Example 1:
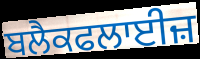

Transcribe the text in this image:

ਬਲੈਕਫਲਾਈਜ਼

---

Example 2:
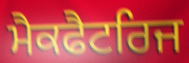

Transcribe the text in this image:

ਮੈਕਫੈਟਰਿਜ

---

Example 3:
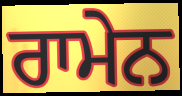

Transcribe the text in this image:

ਰਾਮੇਨ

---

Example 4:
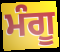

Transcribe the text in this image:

ਮੰਗੂ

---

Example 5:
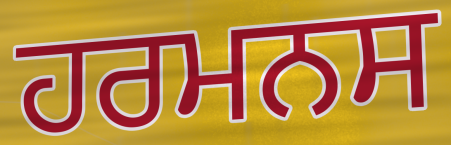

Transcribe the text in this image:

ਹਰਮਨਸ